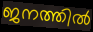
ജനത്തിൽ